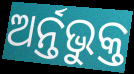
ଅର୍ନ୍ତଭୁକ୍ତ